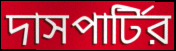
দাসপার্টির